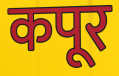
कपूर